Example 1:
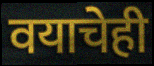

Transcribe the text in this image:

वयाचेही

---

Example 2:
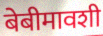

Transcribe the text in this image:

बेबीमावशी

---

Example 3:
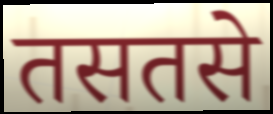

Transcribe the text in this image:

तसतसे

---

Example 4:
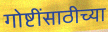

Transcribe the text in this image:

गोष्टींसाठीच्या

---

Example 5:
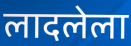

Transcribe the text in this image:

लादलेला